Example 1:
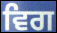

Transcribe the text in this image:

ਵਿਗ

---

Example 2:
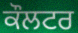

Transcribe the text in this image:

ਕੌਲਟਰ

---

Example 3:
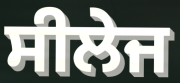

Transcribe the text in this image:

ਸੀਲੇਜ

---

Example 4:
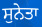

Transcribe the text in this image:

ਸੁਨੇਤਾ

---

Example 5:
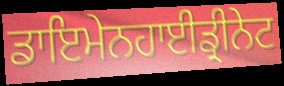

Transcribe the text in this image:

ਡਾਇਮੇਨਹਾਈਡ੍ਰੀਨੇਟ